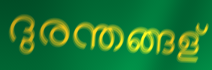
ദുരന്തങ്ങള്